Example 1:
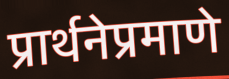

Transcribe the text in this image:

प्रार्थनेप्रमाणे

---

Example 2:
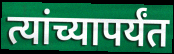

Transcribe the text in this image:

त्यांच्यापर्यंत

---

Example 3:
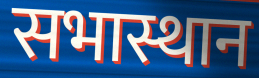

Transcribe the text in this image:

सभास्थान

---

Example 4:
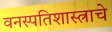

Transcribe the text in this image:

वनस्पतिशास्त्राचे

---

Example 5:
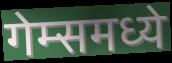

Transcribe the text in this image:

गेम्समध्ये